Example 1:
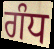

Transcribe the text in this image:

ਗੰਧ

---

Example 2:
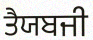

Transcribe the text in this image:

ਤੈਯਬਜੀ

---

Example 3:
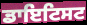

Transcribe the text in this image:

ਡਾਇਟਿਸਟ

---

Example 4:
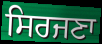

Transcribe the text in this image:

ਸਿਰਜਣਾ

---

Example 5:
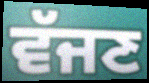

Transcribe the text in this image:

ਵੱਜਣ